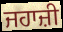
ਜਹਾਜ਼ੀ